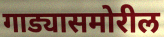
गाड्यासमोरील